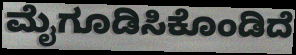
ಮೈಗೂಡಿಸಿಕೊಂಡಿದೆ